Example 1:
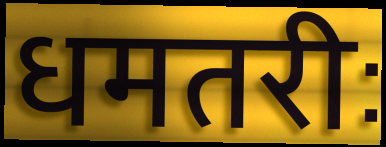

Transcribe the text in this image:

धमतरीः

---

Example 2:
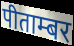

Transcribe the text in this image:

पीताम्बर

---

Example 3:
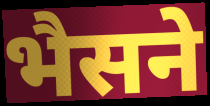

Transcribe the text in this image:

भैसने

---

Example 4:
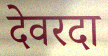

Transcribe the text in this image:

देवरदा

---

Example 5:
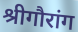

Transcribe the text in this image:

श्रीगौरांग